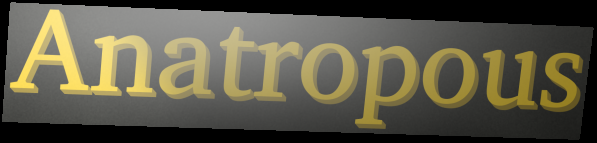
Anatropous